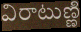
విరాటుణ్ణి